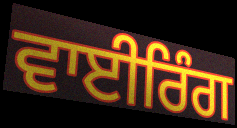
ਵਾਈਰਿੰਗ